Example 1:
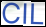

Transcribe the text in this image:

CIL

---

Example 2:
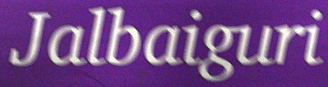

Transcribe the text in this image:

Jalbaiguri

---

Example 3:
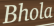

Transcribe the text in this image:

Bhola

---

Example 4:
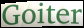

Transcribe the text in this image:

Goiter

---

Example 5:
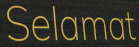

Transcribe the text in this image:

Selamat